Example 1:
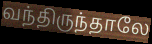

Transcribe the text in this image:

வந்திருந்தாலே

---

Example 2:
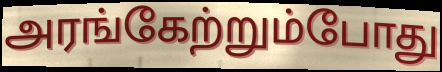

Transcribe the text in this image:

அரங்கேற்றும்போது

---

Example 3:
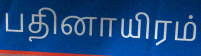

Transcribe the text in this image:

பதினாயிரம்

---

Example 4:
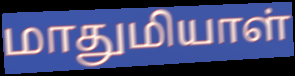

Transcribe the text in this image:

மாதுமியாள்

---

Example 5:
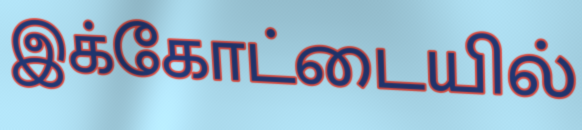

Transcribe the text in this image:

இக்கோட்டையில்